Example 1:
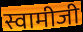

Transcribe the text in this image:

स्वामीजी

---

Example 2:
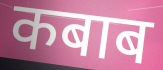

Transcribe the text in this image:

कबाब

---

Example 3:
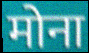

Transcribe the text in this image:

मोना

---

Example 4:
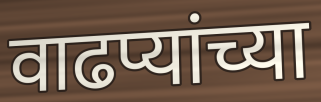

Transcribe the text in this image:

वाढप्यांच्या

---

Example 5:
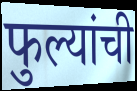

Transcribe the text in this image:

फुल्यांची